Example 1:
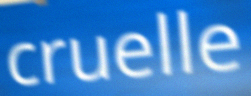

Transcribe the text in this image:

cruelle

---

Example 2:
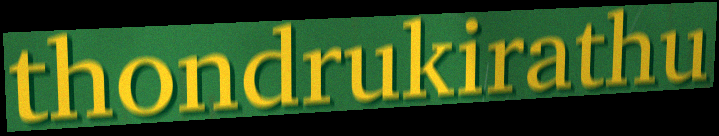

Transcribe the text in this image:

thondrukirathu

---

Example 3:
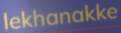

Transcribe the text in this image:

lekhanakke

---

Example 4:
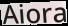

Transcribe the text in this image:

Aiora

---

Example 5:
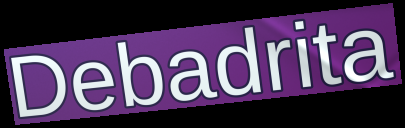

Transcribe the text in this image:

Debadrita